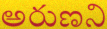
అరుణని